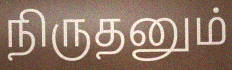
நிருதனும்